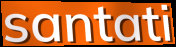
santati